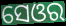
ସେଓର